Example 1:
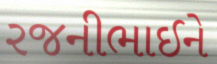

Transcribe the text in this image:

રજનીભાઈને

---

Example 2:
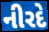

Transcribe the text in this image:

નીરદે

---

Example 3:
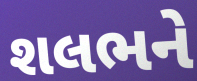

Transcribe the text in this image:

શલભને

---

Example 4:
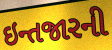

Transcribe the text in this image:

ઇન્તજારની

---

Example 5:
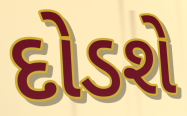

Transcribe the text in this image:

દોડશે